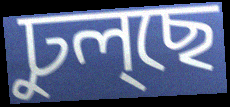
ঢুল্‌ছে